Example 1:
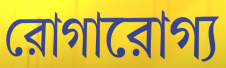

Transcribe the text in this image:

রোগারোগ্য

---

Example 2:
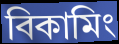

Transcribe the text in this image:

বিকামিং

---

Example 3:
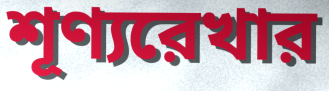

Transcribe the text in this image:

শূণ্যরেখার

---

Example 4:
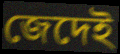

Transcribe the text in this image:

জেদেই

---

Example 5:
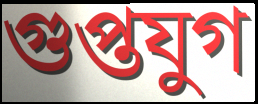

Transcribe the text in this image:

গুপ্তযুগ